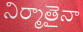
నిర్మాతైనా